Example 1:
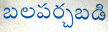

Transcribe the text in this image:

బలపర్చబడి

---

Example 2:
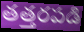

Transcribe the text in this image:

తత్తరపడి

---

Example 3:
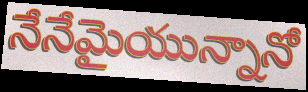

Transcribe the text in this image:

నేనేమైయున్నానో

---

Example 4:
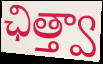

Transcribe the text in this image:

ఛిత్త్వా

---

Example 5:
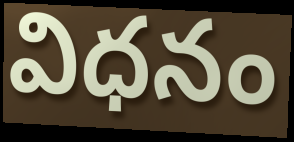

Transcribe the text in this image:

విధనం